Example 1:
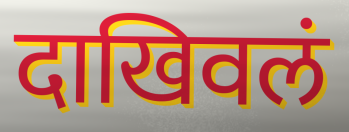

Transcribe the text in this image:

दाखिवलं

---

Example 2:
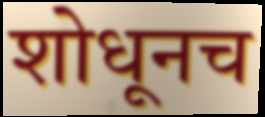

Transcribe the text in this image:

शोधूनच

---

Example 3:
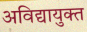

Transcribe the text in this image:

अविद्यायुक्त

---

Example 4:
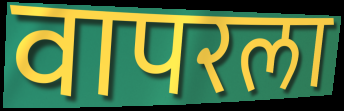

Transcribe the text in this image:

वापरला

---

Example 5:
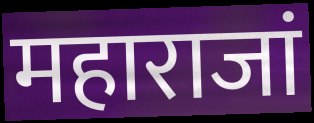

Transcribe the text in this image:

महाराजां